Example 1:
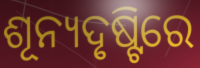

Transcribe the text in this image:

ଶୂନ୍ୟଦୃଷ୍ଟିରେ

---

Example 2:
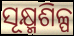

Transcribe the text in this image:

ସୂକ୍ଷ୍ମଶିଳ୍ପ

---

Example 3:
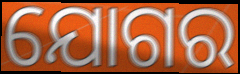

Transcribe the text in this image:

ଯୋଗର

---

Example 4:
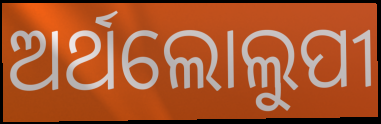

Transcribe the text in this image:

ଅର୍ଥଲୋଲୁପୀ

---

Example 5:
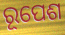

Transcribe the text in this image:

ରୂପେଶ